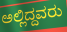
ಅಲ್ಲಿದ್ದವರು